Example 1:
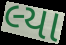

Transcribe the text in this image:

લ્યા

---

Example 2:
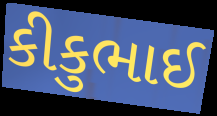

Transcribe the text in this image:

કીકુભાઈ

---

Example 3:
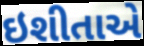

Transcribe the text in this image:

ઇશીતાએ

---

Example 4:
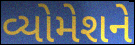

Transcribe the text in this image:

વ્યોમેશને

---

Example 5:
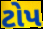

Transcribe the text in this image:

ટોપ